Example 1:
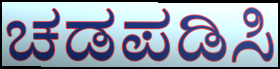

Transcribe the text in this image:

ಚಡಪಡಿಸಿ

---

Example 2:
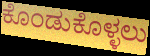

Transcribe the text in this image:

ಕೊಂಡುಕೊಳ್ಳಲು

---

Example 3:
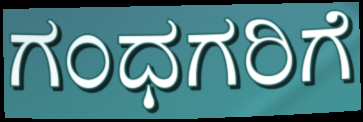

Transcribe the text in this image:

ಗಂಧಗರಿಗೆ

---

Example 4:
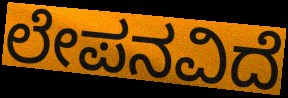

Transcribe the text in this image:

ಲೇಪನವಿದೆ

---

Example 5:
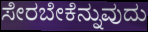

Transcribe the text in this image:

ಸೇರಬೇಕೆನ್ನುವುದು